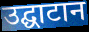
उद्घाटान